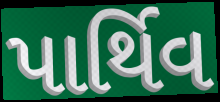
પાર્થિવ